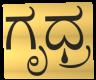
ಗೃಧ್ರ